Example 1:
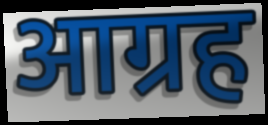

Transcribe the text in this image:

आग्रह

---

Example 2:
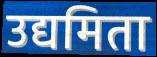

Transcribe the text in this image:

उद्यमिता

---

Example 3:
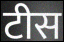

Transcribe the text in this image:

टीस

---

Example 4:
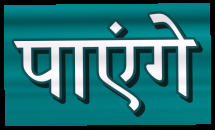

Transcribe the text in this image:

पाएंगे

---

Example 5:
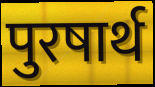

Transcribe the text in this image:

पुरषार्थ